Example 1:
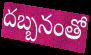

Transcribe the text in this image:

దబ్బనంతో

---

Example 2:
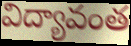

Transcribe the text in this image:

విద్యావంత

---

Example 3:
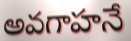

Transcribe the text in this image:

అవగాహనే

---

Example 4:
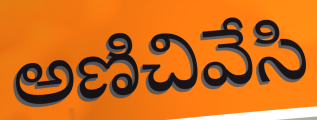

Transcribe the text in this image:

అణిచివేసి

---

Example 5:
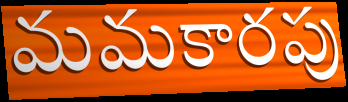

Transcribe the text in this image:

మమకారపు